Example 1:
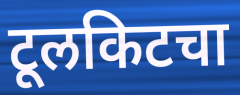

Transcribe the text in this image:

टूलकिटचा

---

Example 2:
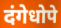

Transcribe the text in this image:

दंगेधोपे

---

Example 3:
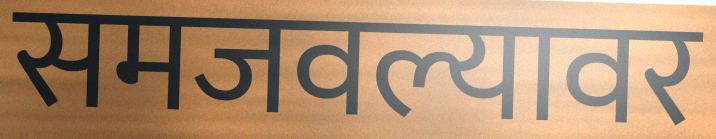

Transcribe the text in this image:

समजवल्यावर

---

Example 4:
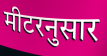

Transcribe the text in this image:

मीटरनुसार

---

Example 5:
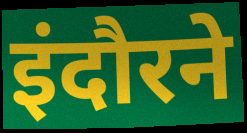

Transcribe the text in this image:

इंदौरने